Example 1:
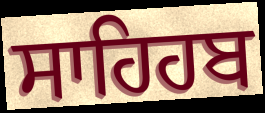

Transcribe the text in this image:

ਸਾਹਿਹਬ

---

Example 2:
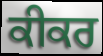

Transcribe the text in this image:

ਕੀਕਰ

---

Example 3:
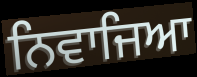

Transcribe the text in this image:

ਨਿਵਾਜਿਆ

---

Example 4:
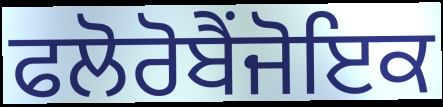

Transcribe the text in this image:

ਫਲੋਰੋਬੈਂਜੋਇਕ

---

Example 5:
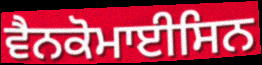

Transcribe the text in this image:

ਵੈਨਕੋਮਾਈਸਿਨ